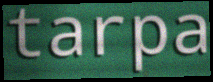
tarpa